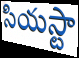
సియస్టా